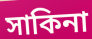
সাকিনা